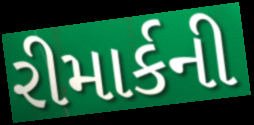
રીમાર્કની